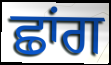
ਛਾਂਗ